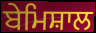
ਬੇਮਿਸ਼ਾਲ